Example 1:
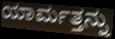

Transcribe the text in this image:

ಯಾರ್ಮತ್ತನ್ನು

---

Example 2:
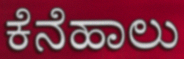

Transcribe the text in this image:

ಕೆನೆಹಾಲು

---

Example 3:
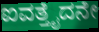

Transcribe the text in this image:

ಐವತ್ತೈದನೇ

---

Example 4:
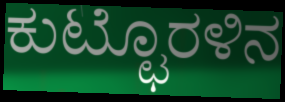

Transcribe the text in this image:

ಕುಟ್ಟೊರಳಿನ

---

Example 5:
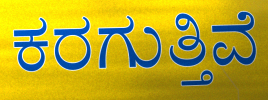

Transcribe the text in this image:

ಕರಗುತ್ತಿವೆ